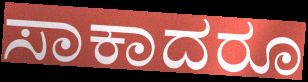
ಸಾಕಾದರೂ